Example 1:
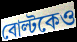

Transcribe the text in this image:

বোল্টকেও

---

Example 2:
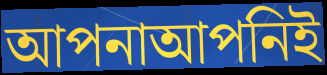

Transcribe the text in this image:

আপনাআপনিই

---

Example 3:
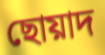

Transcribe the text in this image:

ছোয়াদ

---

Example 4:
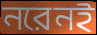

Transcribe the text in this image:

নরেনই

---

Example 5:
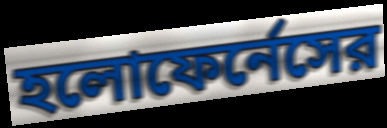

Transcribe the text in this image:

হলোফের্নেসের